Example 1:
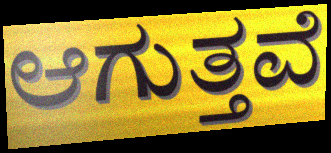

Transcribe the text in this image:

ಆಗುತ್ತವೆ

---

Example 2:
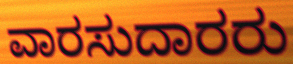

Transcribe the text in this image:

ವಾರಸುದಾರರು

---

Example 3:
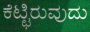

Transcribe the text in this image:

ಕೆಟ್ಟಿರುವುದು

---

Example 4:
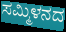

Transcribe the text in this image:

ಸಮ್ಮಿಳನದ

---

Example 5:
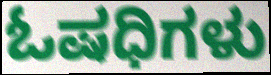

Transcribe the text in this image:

ಓಷಧಿಗಳು